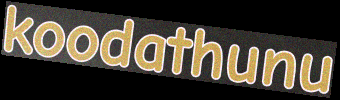
koodathunu